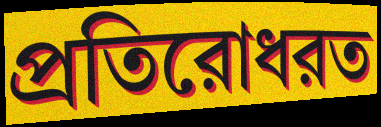
প্রতিরোধরত